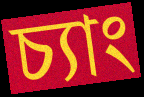
চ্যাং